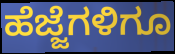
ಹೆಜ್ಜೆಗಳಿಗೂ